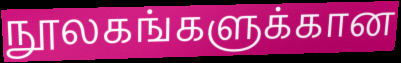
நூலகங்களுக்கான